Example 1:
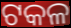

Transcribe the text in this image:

ଟକଳ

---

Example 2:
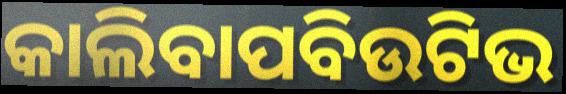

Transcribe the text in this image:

କାଲିବାପବିଉଟିଭ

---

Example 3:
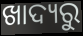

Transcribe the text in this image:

ଖାଦ୍ୟରୁ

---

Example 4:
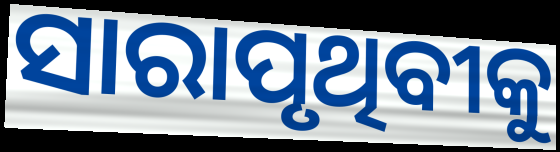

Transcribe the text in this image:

ସାରାପୃଥିବୀକୁ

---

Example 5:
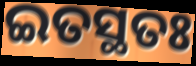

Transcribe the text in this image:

ଇତସ୍ଥତଃ